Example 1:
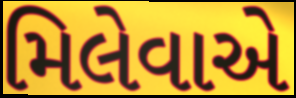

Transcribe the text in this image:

મિલેવાએ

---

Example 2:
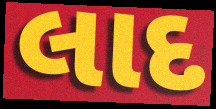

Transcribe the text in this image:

લાદ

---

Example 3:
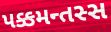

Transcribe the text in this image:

પક્કમન્તસ્સ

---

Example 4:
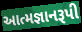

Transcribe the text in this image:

આત્મજ્ઞાનરૂપી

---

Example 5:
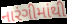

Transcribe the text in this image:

નારંગીમાંથી